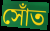
সোঁত